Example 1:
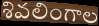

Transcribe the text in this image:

శివలింగాల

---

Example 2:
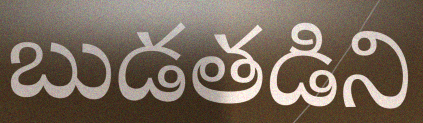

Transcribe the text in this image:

బుడతడిని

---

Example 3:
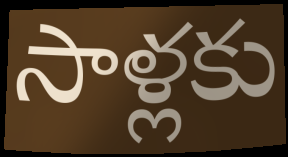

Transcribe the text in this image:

సాళ్లకు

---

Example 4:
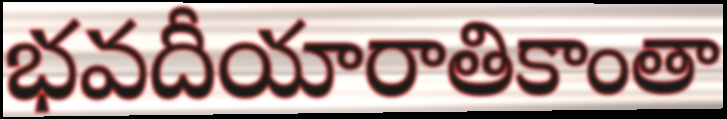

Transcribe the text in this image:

భవదీయారాతికాంతా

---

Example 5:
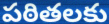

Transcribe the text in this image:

పఠితలకు